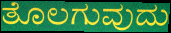
ತೊಲಗುವುದು